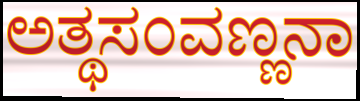
ಅತ್ಥಸಂವಣ್ಣನಾ